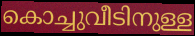
കൊച്ചുവീടിനുള്ള